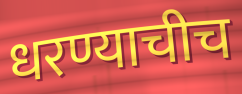
धरण्याचीच